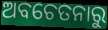
ଅବଚେତନାରୁ